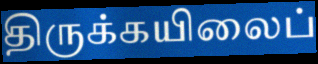
திருக்கயிலைப்